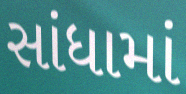
સાંધામાં